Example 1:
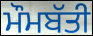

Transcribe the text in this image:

ਮੌਮਬੱਤੀ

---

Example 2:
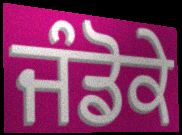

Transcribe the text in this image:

ਜੰਡੋਕੇ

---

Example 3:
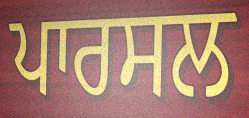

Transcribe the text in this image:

ਪਾਰਸਲ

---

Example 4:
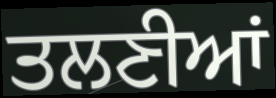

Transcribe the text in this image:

ਤਲਣੀਆਂ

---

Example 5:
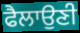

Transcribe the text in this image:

ਫੈਲਾਉਣੀ